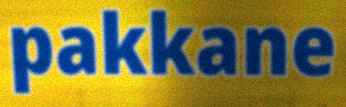
pakkane